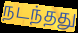
நடந்தது